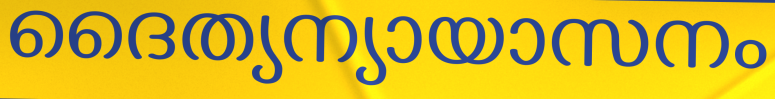
ദൈത്യന്യായാസനം